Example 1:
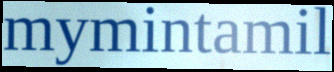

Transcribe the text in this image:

mymintamil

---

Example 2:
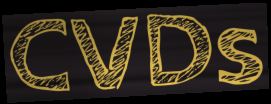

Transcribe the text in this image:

CVDs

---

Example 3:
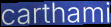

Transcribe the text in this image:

carthami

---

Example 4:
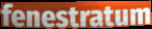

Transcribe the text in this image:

fenestratum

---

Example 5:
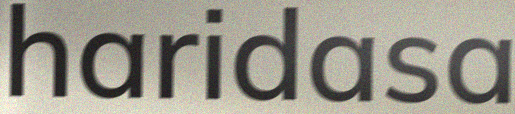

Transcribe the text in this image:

haridasa